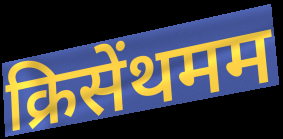
क्रिसेंथमम